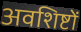
अवशिष्टों